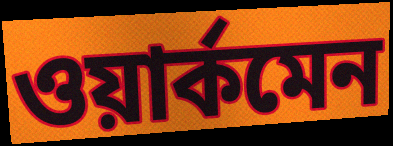
ওয়ার্কমেন